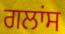
ਗਲਾਂਸ